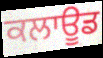
ਕਲਾਊਡ